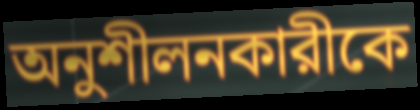
অনুশীলনকারীকে